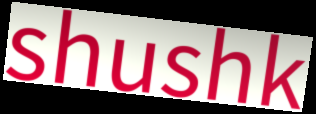
shushk